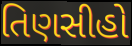
તિણસીહો